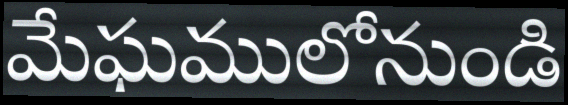
మేఘములోనుండి